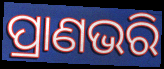
ପ୍ରାଣଭରି